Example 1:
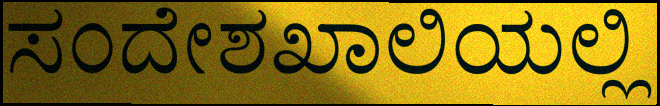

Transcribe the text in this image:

ಸಂದೇಶಖಾಲಿಯಲ್ಲಿ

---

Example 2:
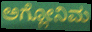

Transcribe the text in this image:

ಅಗ್ಲೋನಿಮ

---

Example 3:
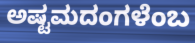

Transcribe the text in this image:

ಅಷ್ಟಮದಂಗಳೆಂಬ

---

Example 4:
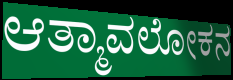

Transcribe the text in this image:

ಆತ್ಮಾವಲೋಕನ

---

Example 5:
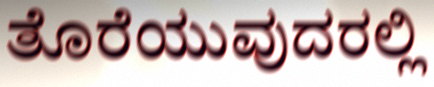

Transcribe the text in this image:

ತೊರೆಯುವುದರಲ್ಲಿ